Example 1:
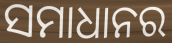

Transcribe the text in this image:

ସମାଧାନର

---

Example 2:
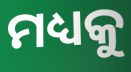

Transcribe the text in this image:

ମଧ୍ୟକୁ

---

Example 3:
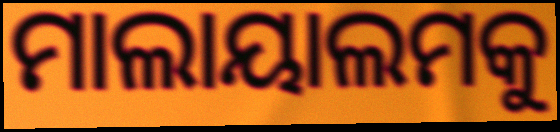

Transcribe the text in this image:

ମାଲାୟାଲମକୁ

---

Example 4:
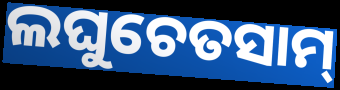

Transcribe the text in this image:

ଲଘୁଚେତସାମ୍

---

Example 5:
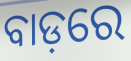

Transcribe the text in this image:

ବାଡ଼ରେ